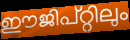
ഈജിപ്റ്റിലും